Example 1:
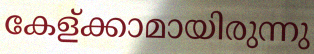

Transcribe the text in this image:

കേള്ക്കാമായിരുന്നു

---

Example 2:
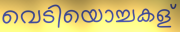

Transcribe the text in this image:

വെടിയൊച്ചകള്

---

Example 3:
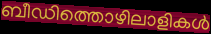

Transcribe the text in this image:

ബീഡിത്തൊഴിലാളികൾ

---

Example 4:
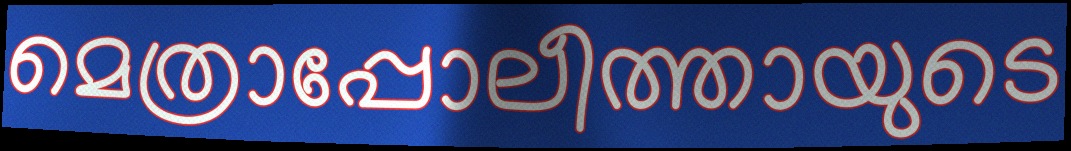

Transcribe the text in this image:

മെത്രാപ്പോലീത്തായുടെ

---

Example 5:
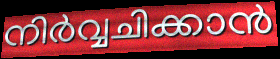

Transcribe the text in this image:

നിർവ്വചിക്കാൻ